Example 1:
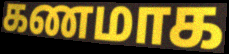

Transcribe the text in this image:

கணமாக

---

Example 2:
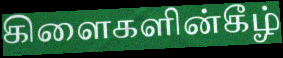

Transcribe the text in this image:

கிளைகளின்கீழ்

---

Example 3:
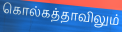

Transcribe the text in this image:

கொல்கத்தாவிலும்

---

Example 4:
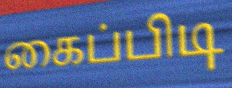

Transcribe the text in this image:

கைப்பிடி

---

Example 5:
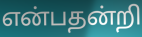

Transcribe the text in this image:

என்பதன்றி